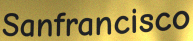
Sanfrancisco